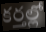
కర్తల్లో